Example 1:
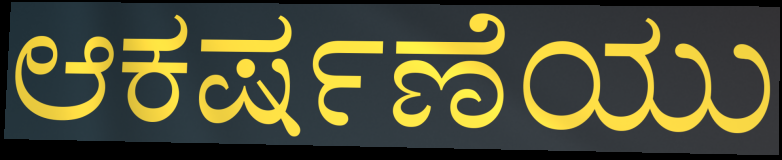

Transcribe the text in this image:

ಆಕರ್ಷಣೆಯು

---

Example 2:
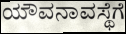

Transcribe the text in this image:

ಯೌವನಾವಸ್ಥೆಗೆ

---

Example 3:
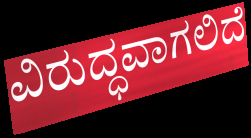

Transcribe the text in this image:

ವಿರುದ್ಧವಾಗಲಿದೆ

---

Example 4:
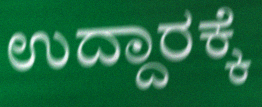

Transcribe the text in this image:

ಉದ್ದಾರಕ್ಕೆ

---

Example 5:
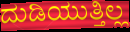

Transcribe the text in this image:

ದುಡಿಯುತ್ತಿಲ್ಲ